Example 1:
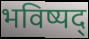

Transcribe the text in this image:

भविष्यद्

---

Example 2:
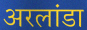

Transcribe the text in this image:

अरलांडा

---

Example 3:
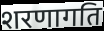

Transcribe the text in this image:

शरणागति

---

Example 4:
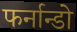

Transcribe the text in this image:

फर्नान्डो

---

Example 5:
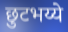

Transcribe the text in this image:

छुटभय्ये